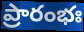
ప్రారంభః